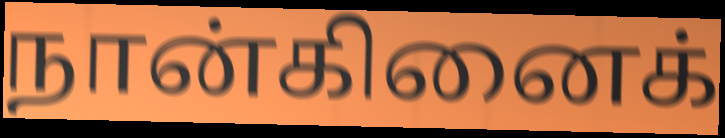
நான்கினைக்